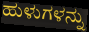
ಹುಳುಗಳನ್ನು